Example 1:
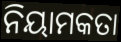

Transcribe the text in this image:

ନିୟାମକତା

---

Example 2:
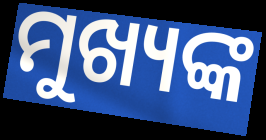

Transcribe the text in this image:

ମୁଖ୍ୟଙ୍କ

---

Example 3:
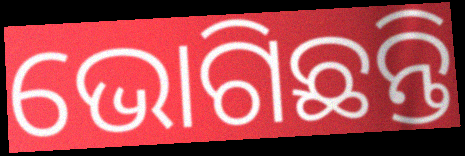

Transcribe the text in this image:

ଭୋଗିଛନ୍ତି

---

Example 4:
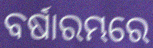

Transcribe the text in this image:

ବର୍ଷାରମ୍ଭରେ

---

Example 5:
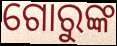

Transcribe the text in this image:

ଗୋରୁଙ୍କ